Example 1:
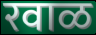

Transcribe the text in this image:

रवाळ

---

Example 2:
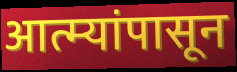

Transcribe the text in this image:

आत्म्यांपासून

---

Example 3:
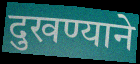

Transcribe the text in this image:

दुखण्याने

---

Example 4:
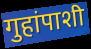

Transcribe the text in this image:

गुहांपाशी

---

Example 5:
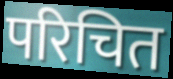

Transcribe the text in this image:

परिचित